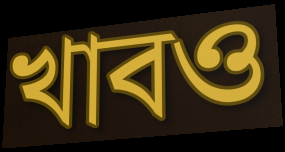
খাবও